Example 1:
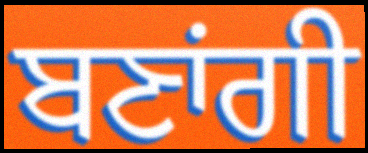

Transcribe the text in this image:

ਬਣਾਂਗੀ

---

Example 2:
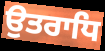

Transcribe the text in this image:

ਉਤਰਾਧਿ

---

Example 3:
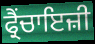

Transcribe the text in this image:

ਫ੍ਰੈਂਚਾਇਜ਼ੀ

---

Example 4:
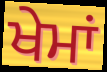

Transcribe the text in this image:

ਖੇਮਾਂ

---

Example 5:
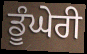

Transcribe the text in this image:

ਡੂੰਘੇਰੀ